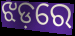
ଝଡ଼ରେ